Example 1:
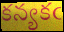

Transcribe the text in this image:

కన్యకఁ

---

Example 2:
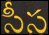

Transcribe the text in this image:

సీస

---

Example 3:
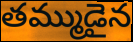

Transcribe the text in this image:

తమ్ముడైన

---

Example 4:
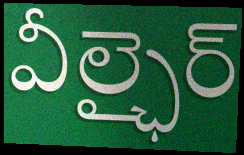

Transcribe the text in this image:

వీల్ఛైర్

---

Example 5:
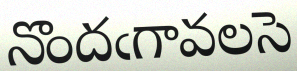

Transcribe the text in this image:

నొందఁగావలసె